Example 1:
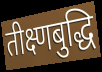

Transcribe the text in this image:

तीक्ष्णबुद्धि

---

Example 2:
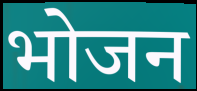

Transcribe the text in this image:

भोजन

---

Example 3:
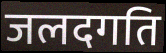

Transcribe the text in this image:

जलदगति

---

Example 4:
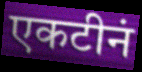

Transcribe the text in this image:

एकटीनं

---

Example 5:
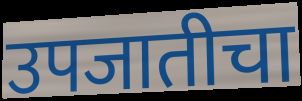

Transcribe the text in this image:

उपजातीचा